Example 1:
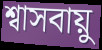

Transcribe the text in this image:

শ্বাসবায়ু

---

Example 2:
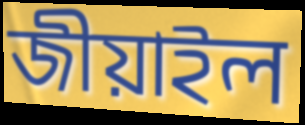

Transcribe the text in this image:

জীয়াইল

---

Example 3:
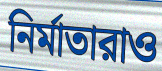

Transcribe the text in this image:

নির্মাতারাও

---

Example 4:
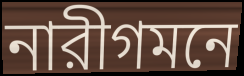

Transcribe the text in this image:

নারীগমনে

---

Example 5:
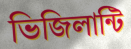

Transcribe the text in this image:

ভিজিলান্টি